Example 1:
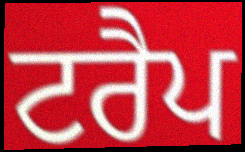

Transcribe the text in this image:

ਟਰੈਪ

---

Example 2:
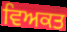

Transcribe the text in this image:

ਵਿਅਕਤ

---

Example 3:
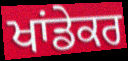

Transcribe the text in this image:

ਖਾਂਡੇਕਰ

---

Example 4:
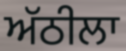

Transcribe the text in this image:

ਅੱਠੀਲਾ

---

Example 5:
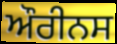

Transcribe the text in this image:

ਔਰੀਨਸ